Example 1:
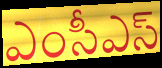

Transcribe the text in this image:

ఎంసీఎస్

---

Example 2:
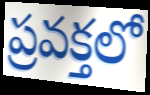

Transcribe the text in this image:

ప్రవక్తలో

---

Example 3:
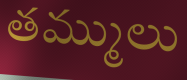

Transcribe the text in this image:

తమ్ములు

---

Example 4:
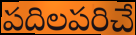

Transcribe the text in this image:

పదిలపరిచే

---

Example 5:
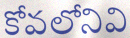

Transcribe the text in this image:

కోవలోనివి